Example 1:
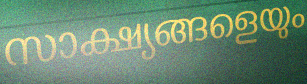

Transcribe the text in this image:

സാക്ഷ്യങ്ങളെയും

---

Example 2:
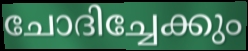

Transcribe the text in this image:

ചോദിച്ചേക്കും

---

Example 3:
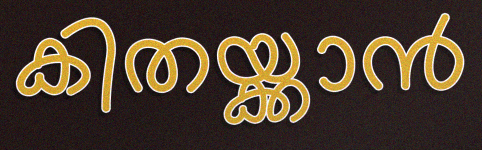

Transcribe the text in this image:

കിതയ്ക്കാൻ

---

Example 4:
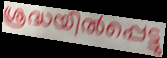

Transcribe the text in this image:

ശ്രദ്ധയിൽപ്പെട്ടു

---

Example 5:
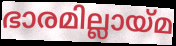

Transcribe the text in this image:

ഭാരമില്ലായ്മ